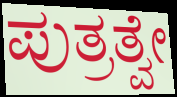
ಪುತ್ರತ್ವೇ